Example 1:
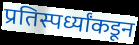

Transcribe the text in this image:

प्रतिस्पर्ध्यांकडून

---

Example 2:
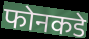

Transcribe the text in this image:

फोनकडे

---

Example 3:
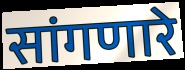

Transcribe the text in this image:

सांगणारे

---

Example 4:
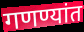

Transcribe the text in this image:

गणण्यांत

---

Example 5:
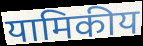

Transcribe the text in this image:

यामिकीय